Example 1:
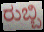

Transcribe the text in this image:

ರುಬ್ಬಿ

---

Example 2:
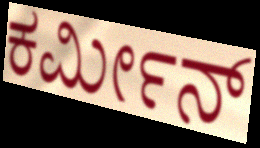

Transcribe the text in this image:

ಕರ್ಮೀನ್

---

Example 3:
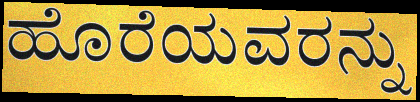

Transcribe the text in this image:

ಹೊರೆಯವರನ್ನು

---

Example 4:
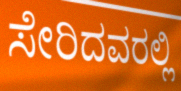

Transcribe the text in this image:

ಸೇರಿದವರಲ್ಲಿ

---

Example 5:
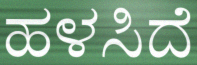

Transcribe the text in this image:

ಹಳಸಿದೆ